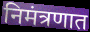
निमंत्रणात